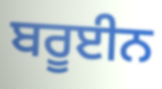
ਬਰੂਈਨ